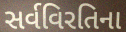
સર્વવિરતિના